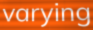
varying